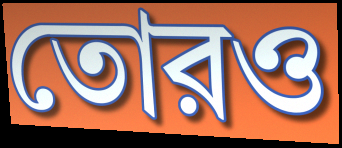
তোরও